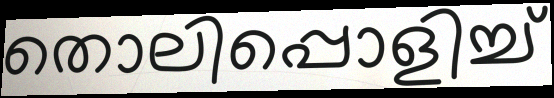
തൊലിപ്പൊളിച്ച്